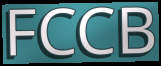
FCCB